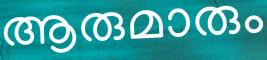
ആരുമാരും